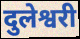
दुलेश्वरी